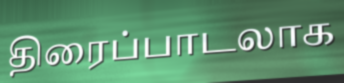
திரைப்பாடலாக